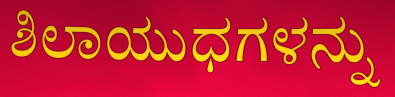
ಶಿಲಾಯುಧಗಳನ್ನು